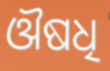
ଔଷଧି